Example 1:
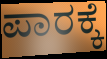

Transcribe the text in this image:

ಪಾರಕ್ಕೆ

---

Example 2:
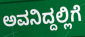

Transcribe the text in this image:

ಅವನಿದ್ದಲ್ಲಿಗೆ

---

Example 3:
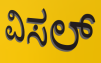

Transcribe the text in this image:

ವಿಸಲ್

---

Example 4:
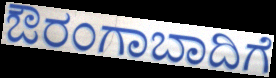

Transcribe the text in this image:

ಔರಂಗಾಬಾದಿಗೆ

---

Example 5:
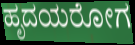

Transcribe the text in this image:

ಹೃದಯರೋಗ